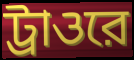
ট্রাওরে